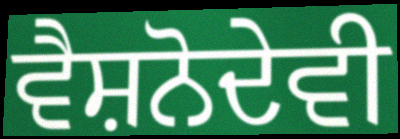
ਵੈਸ਼ਨੋਦੇਵੀ